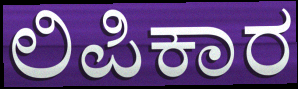
ಲಿಪಿಕಾರ